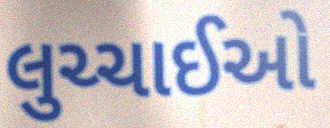
લુચ્ચાઈઓ